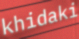
khidaki